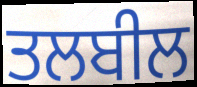
ਤਲਬੀਲ